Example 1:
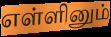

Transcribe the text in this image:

எள்ளினும்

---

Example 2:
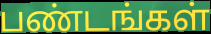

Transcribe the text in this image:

பண்டங்கள்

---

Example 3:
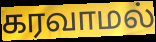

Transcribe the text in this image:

கரவாமல்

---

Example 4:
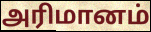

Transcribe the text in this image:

அரிமானம்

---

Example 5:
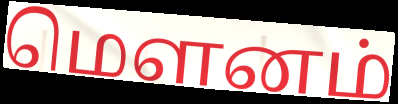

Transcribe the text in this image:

மெளனம்